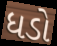
ધડો